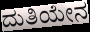
ದುತಿಯೇನ